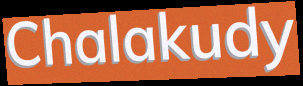
Chalakudy